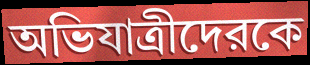
অভিযাত্রীদেরকে